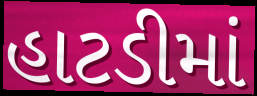
હાટડીમાં